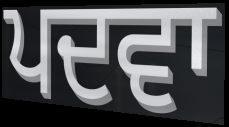
ਪਦਵਾ